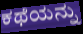
ಕಥೆಯನ್ನು